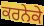
ਕਰਨੇਕੇ